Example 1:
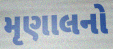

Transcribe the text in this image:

મૃણાલનો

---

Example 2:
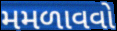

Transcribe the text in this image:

મમળાવવો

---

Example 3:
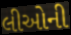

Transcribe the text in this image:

લીઓની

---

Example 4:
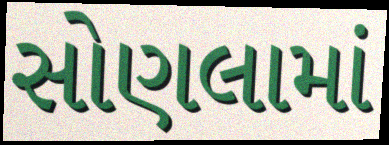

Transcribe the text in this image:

સોણલામાં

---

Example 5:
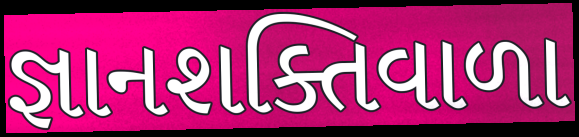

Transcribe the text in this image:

જ્ઞાનશક્તિવાળા